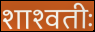
शाश्वतीः